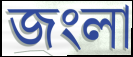
জংলা